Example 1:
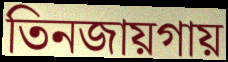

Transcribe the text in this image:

তিনজায়গায়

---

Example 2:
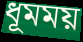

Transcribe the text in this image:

ধূমময়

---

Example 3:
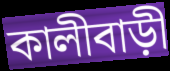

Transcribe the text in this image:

কালীবাড়ী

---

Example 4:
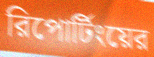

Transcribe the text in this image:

রিপোর্টিংয়ের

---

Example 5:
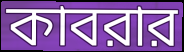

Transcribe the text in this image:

কাবরার